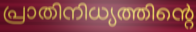
പ്രാതിനിധ്യത്തിന്റെ